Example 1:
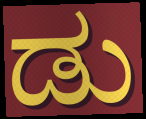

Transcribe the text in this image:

ಡು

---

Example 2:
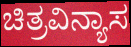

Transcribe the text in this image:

ಚಿತ್ರವಿನ್ಯಾಸ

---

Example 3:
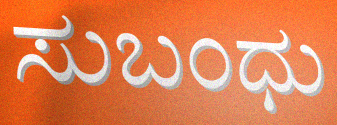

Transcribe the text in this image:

ಸುಬಂಧು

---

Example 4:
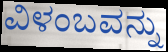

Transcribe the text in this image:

ವಿಳಂಬವನ್ನು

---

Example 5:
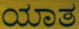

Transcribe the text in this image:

ಯಾತ